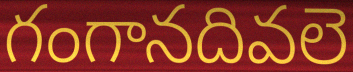
గంగానదివలె